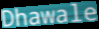
Dhawale